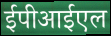
ईपीआईएल